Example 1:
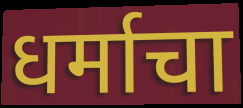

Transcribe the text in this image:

धर्माचा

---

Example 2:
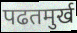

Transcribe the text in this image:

पढतमुर्ख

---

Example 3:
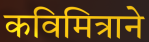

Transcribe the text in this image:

कविमित्राने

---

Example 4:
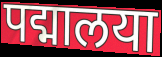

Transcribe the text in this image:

पद्मालया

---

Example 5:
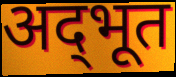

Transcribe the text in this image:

अद्‌भूत